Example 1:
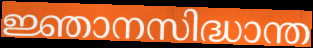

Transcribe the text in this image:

ജ്ഞാനസിദ്ധാന്ത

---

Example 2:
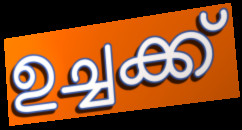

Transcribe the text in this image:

ഉച്ചക്ക്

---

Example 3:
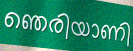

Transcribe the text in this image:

ഞെരിയാണി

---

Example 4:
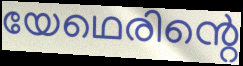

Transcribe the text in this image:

യേഥെരിന്റെ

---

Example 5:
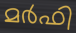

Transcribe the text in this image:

മർഫി